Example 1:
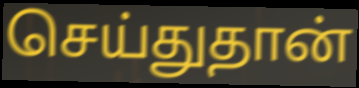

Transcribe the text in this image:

செய்துதான்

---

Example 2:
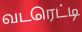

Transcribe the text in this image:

வடரெட்டி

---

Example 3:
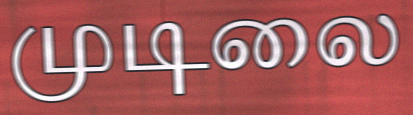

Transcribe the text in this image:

முடிலை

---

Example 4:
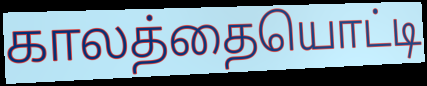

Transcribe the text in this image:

காலத்தையொட்டி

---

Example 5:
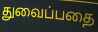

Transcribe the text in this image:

துவைப்பதை